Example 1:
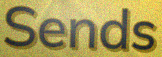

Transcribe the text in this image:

Sends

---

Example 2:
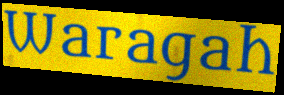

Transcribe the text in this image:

Waragah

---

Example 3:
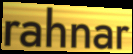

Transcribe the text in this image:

rahnar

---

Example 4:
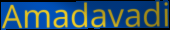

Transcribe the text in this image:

Amadavadi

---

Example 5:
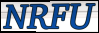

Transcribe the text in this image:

NRFU